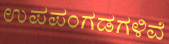
ಉಪಪಂಗಡಗಳಿವೆ